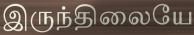
இருந்திலையே